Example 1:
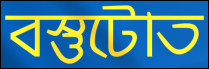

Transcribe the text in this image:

বস্তুটোত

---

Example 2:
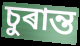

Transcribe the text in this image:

চুৰান্ত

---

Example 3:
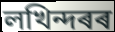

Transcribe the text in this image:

লখিন্দৰৰ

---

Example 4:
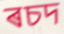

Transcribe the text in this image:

ৰচদ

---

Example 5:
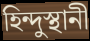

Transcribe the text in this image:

হিন্দুস্থানী